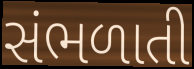
સંભળાતી